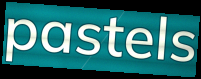
pastels